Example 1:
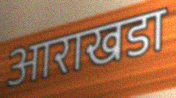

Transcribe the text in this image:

आराखडा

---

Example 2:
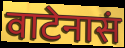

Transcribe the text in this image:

वाटेनासं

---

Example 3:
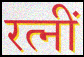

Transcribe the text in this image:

रत्नीं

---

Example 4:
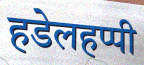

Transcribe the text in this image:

हडेलहप्पी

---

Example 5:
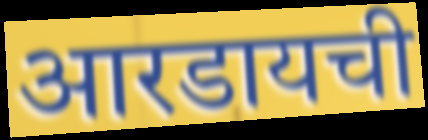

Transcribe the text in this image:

आरडायची